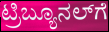
ಟ್ರಿಬ್ಯೂನಲ್‌ಗೆ